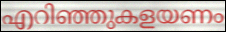
എറിഞ്ഞുകളയണം